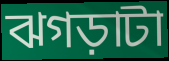
ঝগড়াটা